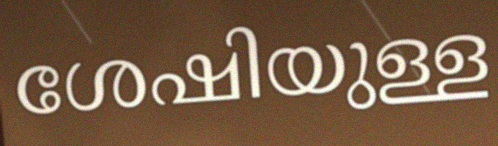
ശേഷിയുള്ള